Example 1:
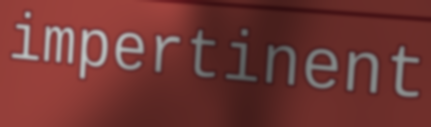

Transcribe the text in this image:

impertinent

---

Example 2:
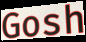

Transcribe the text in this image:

Gosh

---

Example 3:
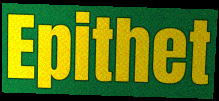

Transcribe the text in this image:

Epithet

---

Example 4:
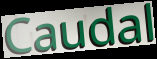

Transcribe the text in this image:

Caudal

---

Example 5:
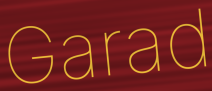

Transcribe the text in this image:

Garad